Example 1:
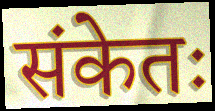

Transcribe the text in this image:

संकेतः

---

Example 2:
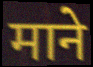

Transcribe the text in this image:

माने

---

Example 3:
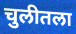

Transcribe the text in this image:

चुलीतला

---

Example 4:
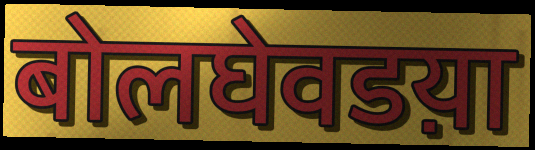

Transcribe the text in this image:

बोलघेवडय़ा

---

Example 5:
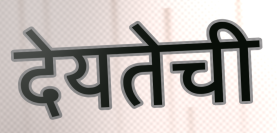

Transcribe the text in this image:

देयतेची